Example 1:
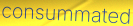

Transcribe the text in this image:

consummated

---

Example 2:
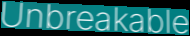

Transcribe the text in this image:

Unbreakable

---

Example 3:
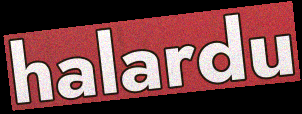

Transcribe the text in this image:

halardu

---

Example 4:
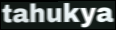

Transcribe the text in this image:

tahukya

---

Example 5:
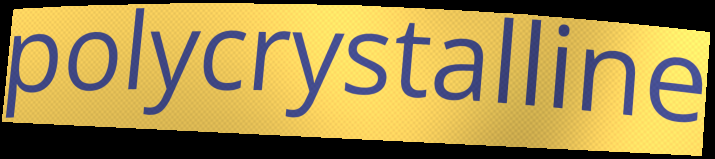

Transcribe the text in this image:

polycrystalline